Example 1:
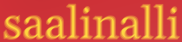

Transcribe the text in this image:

saalinalli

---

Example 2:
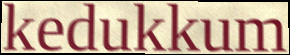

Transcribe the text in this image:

kedukkum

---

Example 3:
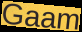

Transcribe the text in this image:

Gaam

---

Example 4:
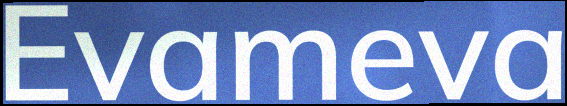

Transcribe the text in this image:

Evameva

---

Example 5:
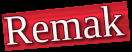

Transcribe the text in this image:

Remak